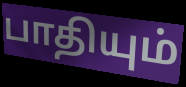
பாதியும்